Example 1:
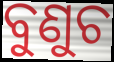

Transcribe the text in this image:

ବୁଣୁଚ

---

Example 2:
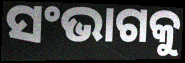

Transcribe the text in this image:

ସଂଭାଗକୁ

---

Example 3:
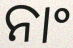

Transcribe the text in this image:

ନାଂ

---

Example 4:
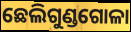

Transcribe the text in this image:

ଛେଲିଗୁଣ୍ଡଗୋଳା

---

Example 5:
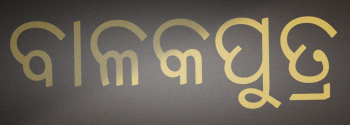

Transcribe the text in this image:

ବାଳକପୁତ୍ର